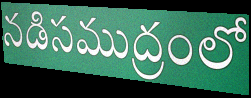
నడిసముద్రంలో